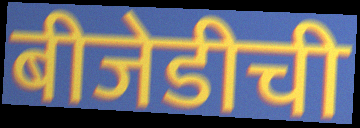
बीजेडीची